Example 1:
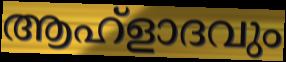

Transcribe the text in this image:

ആഹ്ളാദവും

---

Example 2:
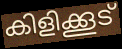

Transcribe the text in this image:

കിളിക്കൂട്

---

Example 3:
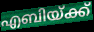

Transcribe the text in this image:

എബിയ്ക്ക്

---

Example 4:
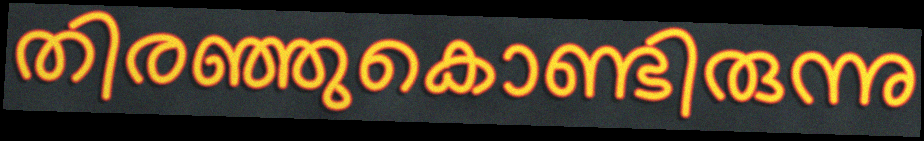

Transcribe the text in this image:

തിരഞ്ഞുകൊണ്ടിരുന്നു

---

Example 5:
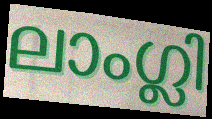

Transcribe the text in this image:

ലാംഗ്ലി